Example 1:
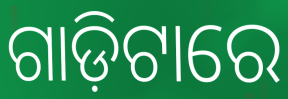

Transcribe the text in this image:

ଗାଡ଼ିଟାରେ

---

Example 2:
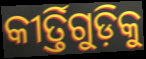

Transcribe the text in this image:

କୀର୍ତ୍ତିଗୁଡ଼ିକୁ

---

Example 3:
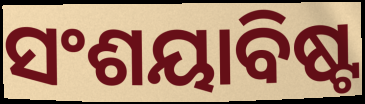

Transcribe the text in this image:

ସଂଶୟାବିଷ୍ଟ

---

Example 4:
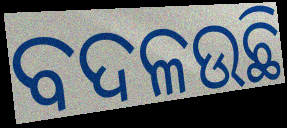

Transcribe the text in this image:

ବଦଳଉଛି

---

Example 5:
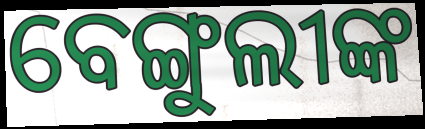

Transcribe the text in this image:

ବେଙ୍ଗୁଲୀଙ୍କ